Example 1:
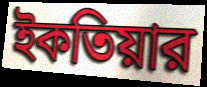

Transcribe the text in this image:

ইকতিয়ার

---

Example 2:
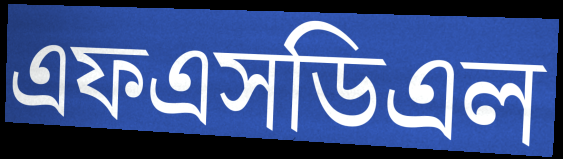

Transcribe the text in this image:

এফএসডিএল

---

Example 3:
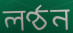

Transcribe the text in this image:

লণ্ঠন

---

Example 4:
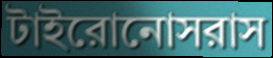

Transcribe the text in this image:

টাইরোনোসরাস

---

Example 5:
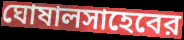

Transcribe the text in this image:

ঘোষালসাহেবের